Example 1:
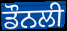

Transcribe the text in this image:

ਡੌਨਲੀ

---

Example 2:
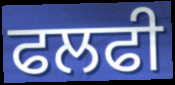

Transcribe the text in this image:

ਫਲਫੀ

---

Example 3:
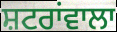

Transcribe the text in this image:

ਸ਼ਟਰਾਂਵਾਲਾ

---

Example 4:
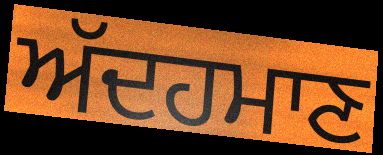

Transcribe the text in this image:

ਅੱਦਹਮਾਣ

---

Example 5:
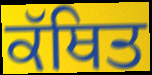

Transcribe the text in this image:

ਕੱਥਿਤ